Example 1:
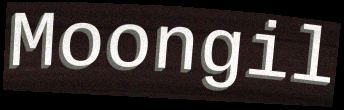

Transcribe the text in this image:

Moongil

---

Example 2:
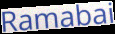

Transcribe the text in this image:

Ramabai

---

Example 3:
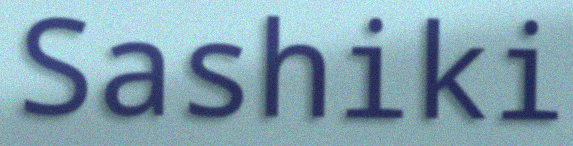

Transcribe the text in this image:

Sashiki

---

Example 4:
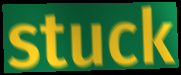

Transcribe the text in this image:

stuck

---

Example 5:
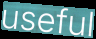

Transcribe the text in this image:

useful